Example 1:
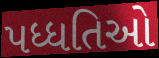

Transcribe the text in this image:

પધ્ધતિઓ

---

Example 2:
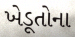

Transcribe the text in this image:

ખેડૂતોના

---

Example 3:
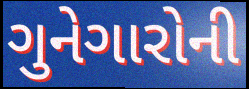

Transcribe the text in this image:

ગુનેગારોની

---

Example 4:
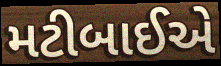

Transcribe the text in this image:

મટીબાઈએ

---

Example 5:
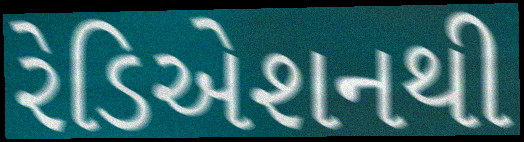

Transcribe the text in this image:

રેડિએશનથી